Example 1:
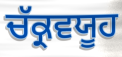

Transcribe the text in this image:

ਚੱਕ੍ਰਵਯੂਹ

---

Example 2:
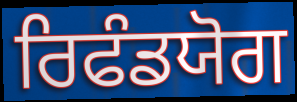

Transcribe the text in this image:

ਰਿਫੰਡਯੋਗ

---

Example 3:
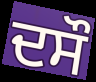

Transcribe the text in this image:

ਦਸੌ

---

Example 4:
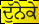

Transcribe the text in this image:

ਦੁੱਨੇਕੇ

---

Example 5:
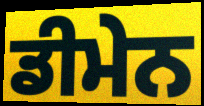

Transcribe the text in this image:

ਡੀਮੇਨ